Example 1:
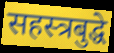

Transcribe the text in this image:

सहस्त्रबुद्धे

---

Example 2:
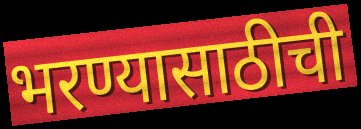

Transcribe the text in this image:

भरण्यासाठीची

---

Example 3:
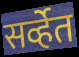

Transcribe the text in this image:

सर्व्हेत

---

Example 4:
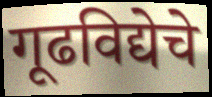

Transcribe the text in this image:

गूढविद्येचे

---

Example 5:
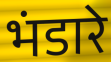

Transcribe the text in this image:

भंडारे